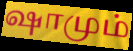
ஷாமும்